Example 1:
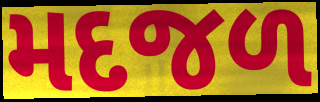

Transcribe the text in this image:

મદજળ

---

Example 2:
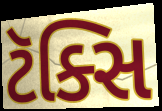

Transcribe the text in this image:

ટૅક્સિ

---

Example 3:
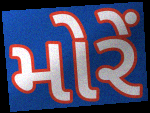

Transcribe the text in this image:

મોરેં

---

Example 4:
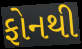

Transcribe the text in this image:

ફોનથી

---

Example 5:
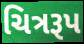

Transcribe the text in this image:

ચિત્રરૂપ